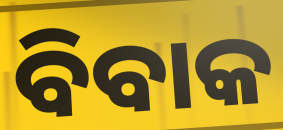
ବିବାକ